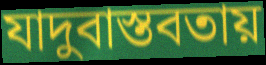
যাদুবাস্তবতায়